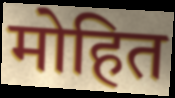
मोहित